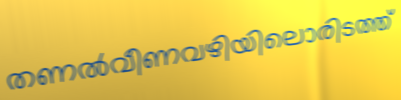
തണൽവീണവഴിയിലൊരിടത്ത്